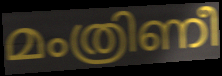
മംത്രിണീ